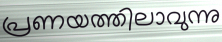
പ്രണയത്തിലാവുന്നു